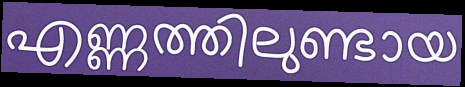
എണ്ണത്തിലുണ്ടായ